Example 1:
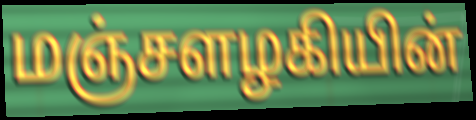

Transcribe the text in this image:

மஞ்சளழகியின்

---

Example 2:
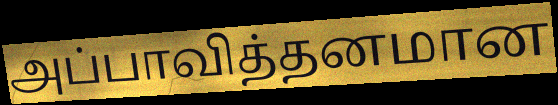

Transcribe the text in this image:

அப்பாவித்தனமான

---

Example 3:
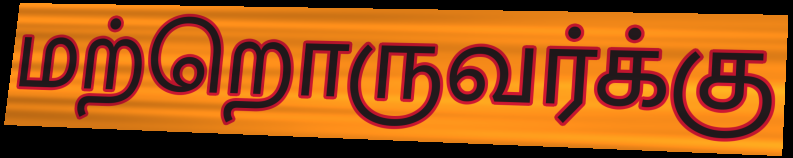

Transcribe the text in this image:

மற்றொருவர்க்கு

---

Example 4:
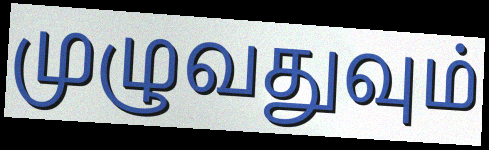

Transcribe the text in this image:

முழுவதுவும்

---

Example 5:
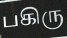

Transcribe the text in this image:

பகிரு